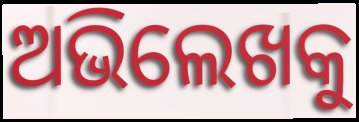
ଅଭିଲେଖକୁ